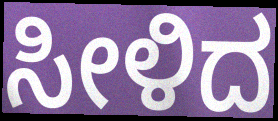
ಸೀಳಿದ